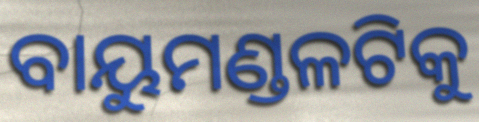
ବାୟୁମଣ୍ଡଳଟିକୁ